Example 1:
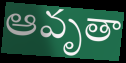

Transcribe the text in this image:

ఆవృతా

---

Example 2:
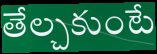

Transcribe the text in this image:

తేల్చకుంటే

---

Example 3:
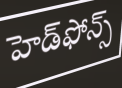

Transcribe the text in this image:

హెడ్‌ఫోన్స్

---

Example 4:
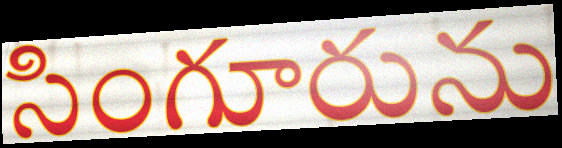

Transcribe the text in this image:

సింగూరును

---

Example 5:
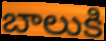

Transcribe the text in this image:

బాలుకి